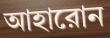
আহারোন